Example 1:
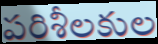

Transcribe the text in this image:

పరిశీలకుల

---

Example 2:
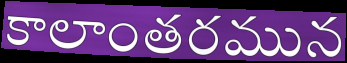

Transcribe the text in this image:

కాలాంతరమున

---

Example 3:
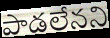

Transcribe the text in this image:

పాడలేనని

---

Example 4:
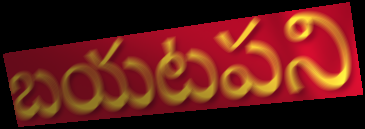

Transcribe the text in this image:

బయటపని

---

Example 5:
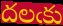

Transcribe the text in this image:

దలఁకు